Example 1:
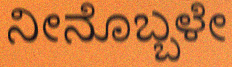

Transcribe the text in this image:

ನೀನೊಬ್ಬಳೇ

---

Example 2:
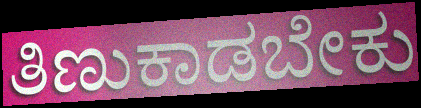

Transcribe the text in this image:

ತಿಣುಕಾಡಬೇಕು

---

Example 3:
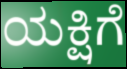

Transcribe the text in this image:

ಯಕ್ಷಿಗೆ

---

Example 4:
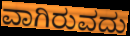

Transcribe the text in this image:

ವಾಗಿರುವದು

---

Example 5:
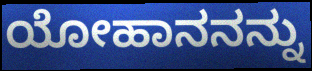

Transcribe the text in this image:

ಯೋಹಾನನನ್ನು